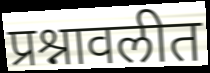
प्रश्नावलीत